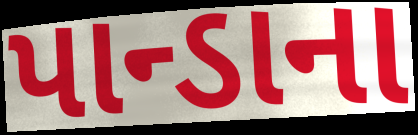
પાન્ડાના